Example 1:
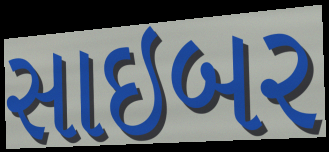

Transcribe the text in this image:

સાઇબર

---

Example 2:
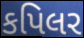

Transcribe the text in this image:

કપિલર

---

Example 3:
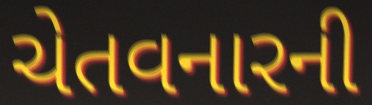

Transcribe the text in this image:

ચેતવનારની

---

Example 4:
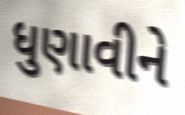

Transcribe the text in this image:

ધુણાવીને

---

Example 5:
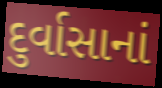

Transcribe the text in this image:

દુર્વાસાનાં